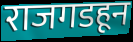
राजगडहून